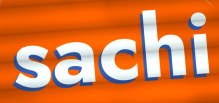
sachi